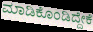
ಮಾಡಿಕೊಂಡಿದ್ದೇಕೆ